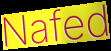
Nafed